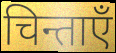
चिन्ताएँ